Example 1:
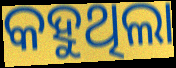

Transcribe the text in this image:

କହୁଥିଲା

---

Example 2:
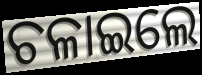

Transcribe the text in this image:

ଚଳାଇଲେ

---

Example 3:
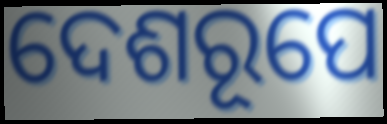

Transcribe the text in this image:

ଦେଶରୂପେ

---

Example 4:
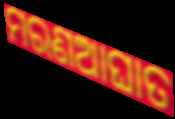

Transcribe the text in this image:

ମରଣଆଘାତ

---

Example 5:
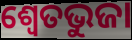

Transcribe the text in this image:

ଶ୍ଵେତଭୁଜା